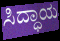
ಸಿದ್ಧಾಯ